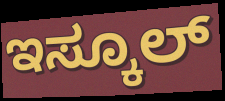
ಇಸ್ಕೂಲ್